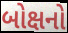
બોક્ષનો